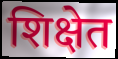
शिक्षेत